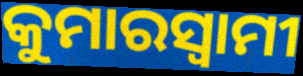
କୁମାରସ୍ୱାମୀ